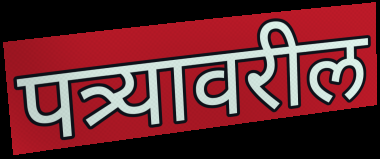
पत्र्यावरील